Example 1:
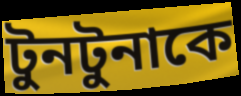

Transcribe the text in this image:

টুনটুনাকে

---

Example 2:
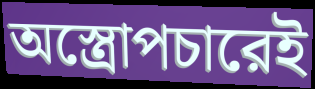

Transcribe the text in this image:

অস্ত্রোপচারেই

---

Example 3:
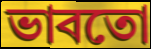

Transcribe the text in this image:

ভাবতো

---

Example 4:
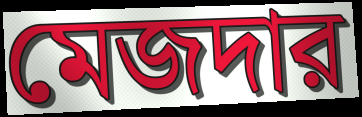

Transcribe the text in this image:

মেজদার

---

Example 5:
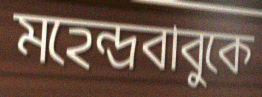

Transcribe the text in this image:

মহেন্দ্রবাবুকে